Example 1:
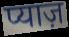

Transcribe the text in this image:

प्याज़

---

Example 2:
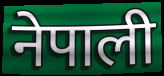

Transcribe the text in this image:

नेपाली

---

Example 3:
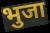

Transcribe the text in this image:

भुजा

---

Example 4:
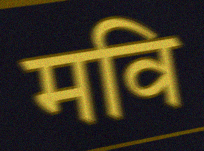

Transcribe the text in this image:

मवि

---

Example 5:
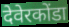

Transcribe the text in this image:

देवेरकोंडा